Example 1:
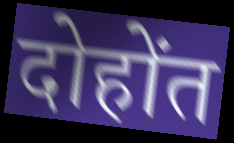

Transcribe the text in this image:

दोहोंत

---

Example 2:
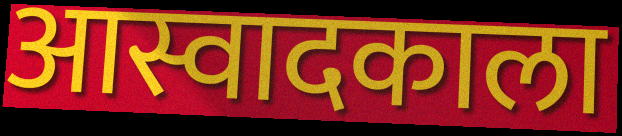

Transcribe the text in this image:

आस्वादकाला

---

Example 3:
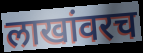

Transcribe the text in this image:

लाखांवरच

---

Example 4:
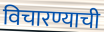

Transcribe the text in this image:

विचारण्याची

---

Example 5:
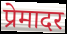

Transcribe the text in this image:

प्रेमादर